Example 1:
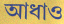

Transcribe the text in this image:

আধাও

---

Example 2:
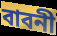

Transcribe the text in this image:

বাবনী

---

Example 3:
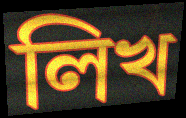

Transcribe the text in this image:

লিখ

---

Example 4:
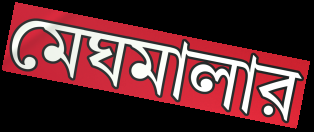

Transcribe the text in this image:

মেঘমালার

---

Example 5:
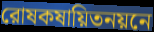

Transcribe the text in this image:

রোষকষায়িতনয়নে